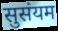
सुसंयम